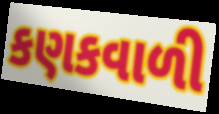
કણકવાળી